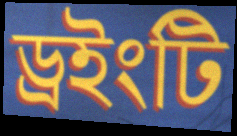
ড্রইংটি